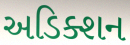
અડિક્શન